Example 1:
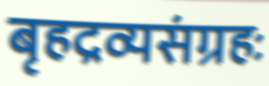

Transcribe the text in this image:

बृहद्रव्यसंग्रहः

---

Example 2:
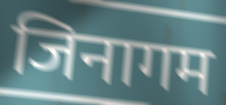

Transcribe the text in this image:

जिनागम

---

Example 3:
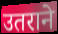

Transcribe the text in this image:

उतराने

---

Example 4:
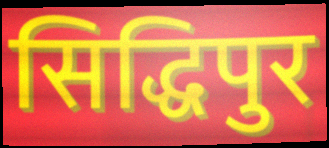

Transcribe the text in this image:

सिद्धिपुर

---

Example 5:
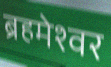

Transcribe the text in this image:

ब्रहमेश्वर